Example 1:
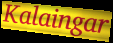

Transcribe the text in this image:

Kalaingar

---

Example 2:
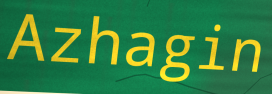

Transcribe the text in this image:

Azhagin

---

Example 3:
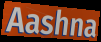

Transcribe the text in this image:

Aashna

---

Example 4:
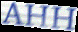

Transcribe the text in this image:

AHH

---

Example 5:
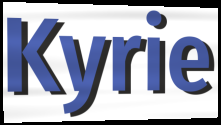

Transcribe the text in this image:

Kyrie